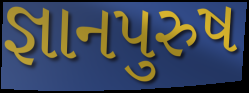
જ્ઞાનપુરુષ